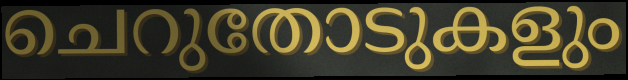
ചെറുതോടുകളും